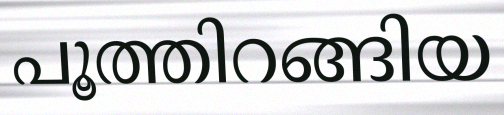
പൂത്തിറങ്ങിയ